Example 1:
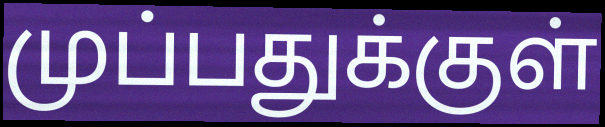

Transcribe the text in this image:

முப்பதுக்குள்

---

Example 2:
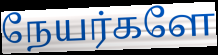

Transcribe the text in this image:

நேயர்களே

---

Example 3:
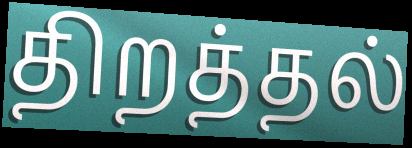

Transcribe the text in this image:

திறத்தல்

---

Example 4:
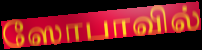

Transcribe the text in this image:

ஸோபாவில்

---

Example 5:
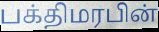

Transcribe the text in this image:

பக்திமரபின்